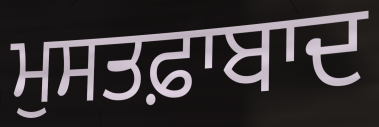
ਮੁਸਤਫ਼ਾਬਾਦ